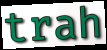
trah